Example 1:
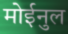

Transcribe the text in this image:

मोईनुल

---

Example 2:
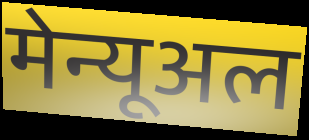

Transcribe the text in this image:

मेन्यूअल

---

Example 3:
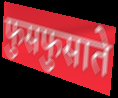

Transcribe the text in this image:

फुसफुसाते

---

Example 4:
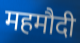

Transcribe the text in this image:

महमौदी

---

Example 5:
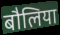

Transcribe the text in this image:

बौलिया